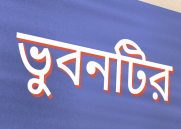
ভুবনটির